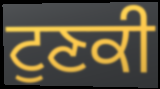
ਟੁਣਕੀ